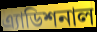
এ্যাডিশনাল